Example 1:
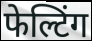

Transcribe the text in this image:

फेल्टिंग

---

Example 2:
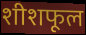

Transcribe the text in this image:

शीशफूल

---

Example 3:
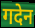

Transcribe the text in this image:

गदेन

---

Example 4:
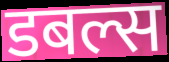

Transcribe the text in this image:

डबल्‍स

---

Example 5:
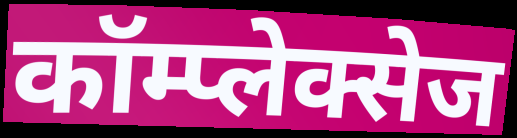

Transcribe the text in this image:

कॉम्प्लेक्सेज